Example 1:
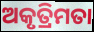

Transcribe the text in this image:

ଅକୃତ୍ରିମତା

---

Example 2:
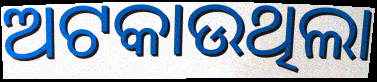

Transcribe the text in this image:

ଅଟକାଉଥିଲା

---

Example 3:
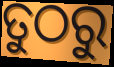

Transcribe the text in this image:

ତୁଠରୁ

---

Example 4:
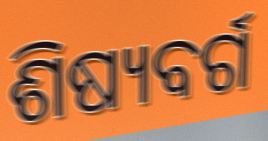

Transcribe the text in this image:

ଶିଷ୍ୟବର୍ଗ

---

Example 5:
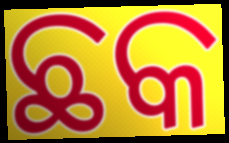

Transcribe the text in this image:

ଛକ